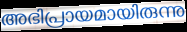
അഭിപ്രായമായിരുന്നു